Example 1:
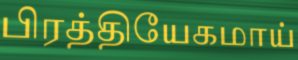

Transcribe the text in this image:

பிரத்தியேகமாய்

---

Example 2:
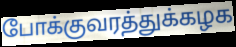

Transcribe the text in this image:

போக்குவரத்துக்கழக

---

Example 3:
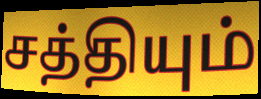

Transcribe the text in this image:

சத்தியும்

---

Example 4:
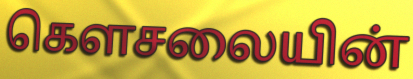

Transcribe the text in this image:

கௌசலையின்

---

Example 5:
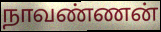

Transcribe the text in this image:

நாவண்ணன்